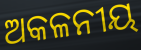
ଅକଳନୀୟ